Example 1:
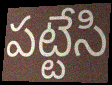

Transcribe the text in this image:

పట్టేసి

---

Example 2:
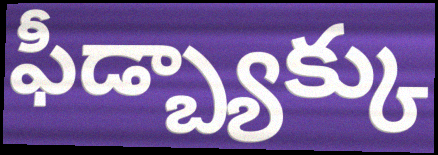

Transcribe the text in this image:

ఫీడ్బ్యాక్కు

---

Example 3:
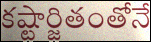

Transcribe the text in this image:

కష్టార్జితంతోనే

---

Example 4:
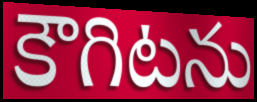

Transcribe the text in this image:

కౌగిటను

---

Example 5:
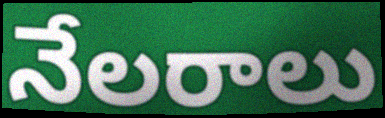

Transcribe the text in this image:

నేలరాలు